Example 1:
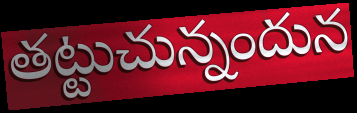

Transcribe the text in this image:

తట్టుచున్నందున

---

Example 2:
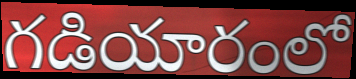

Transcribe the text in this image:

గడియారంలో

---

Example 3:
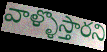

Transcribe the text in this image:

వాళ్ళొస్తారని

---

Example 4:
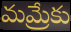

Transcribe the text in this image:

మమ్రేకు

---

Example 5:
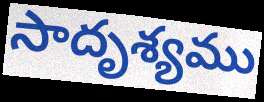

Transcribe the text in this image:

సాదృశ్యము